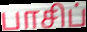
பாசிப்